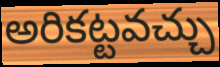
అరికట్టవచ్చు